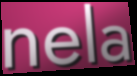
nela